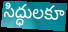
సిద్ధులకూ